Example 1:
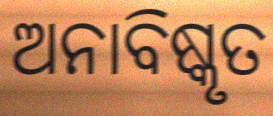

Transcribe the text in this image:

ଅନାବିଷ୍କୃତ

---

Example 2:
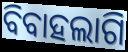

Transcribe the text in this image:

ବିବାହଲାଗି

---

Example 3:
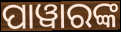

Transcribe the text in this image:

ପାୱାରଙ୍କ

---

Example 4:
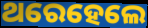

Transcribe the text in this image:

ଥରେହେଲେ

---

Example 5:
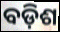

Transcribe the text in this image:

ବଡ଼ିଶ